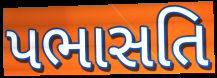
પભાસતિ